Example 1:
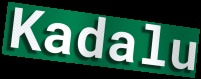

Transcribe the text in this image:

Kadalu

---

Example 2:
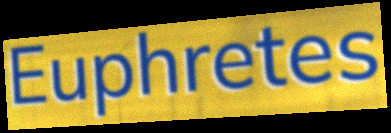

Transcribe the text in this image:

Euphretes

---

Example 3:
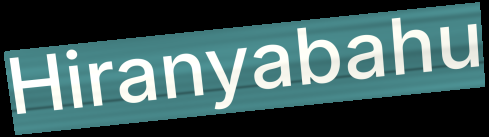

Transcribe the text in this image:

Hiranyabahu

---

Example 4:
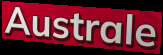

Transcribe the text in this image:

Australe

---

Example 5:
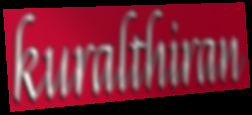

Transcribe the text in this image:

kuralthiran